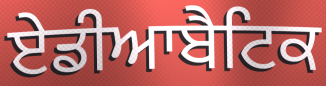
ਏਡੀਆਬੈਟਿਕ